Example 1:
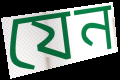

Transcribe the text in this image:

যেন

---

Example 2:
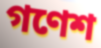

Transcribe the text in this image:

গণেশ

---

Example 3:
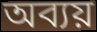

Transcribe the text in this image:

অব্যয়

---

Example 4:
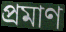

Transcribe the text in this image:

প্ৰমাণ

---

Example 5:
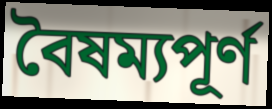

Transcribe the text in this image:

বৈষম্যপূৰ্ণ